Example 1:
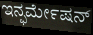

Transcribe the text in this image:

ಇನ್ಫರ್ಮೇಷನ್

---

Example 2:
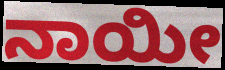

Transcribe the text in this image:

ನಾಯೀ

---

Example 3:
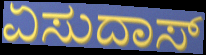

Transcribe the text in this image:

ಏಸುದಾಸ್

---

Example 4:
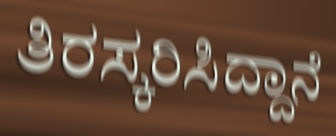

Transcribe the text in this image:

ತಿರಸ್ಕರಿಸಿದ್ದಾನೆ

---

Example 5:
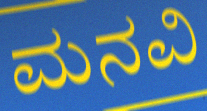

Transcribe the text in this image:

ಮನವಿ